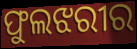
ଫୁଲଝରୀର